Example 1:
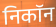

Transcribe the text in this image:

निकॉन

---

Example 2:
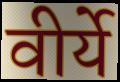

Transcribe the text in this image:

वीर्ये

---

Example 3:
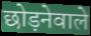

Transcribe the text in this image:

छोड़नेवाले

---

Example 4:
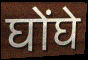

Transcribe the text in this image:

घोंघे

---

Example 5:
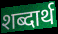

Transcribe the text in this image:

शब्दार्थ